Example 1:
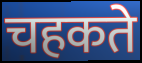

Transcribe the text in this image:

चहकते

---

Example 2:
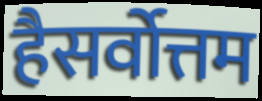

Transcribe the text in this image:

हैसर्वोत्तम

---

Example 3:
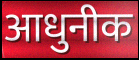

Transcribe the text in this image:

आधुनीक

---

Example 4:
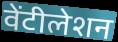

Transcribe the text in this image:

वेंटीलेशन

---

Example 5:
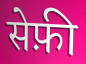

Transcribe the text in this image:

सेफ़ी